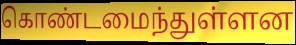
கொண்டமைந்துள்ளன